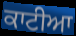
ਕਾਟੀਆ